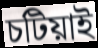
চটিয়াই